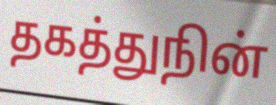
தகத்துநின்